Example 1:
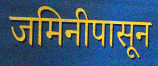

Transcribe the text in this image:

जमिनीपासून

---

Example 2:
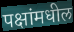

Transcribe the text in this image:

पक्षांमधील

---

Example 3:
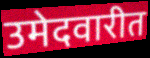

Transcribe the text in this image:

उमेदवारीत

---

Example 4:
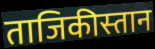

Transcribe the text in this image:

ताजिकीस्तान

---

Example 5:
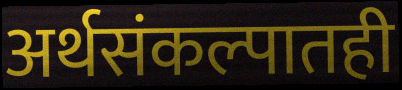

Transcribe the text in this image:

अर्थसंकल्पातही